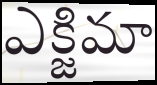
ఎక్జిమా